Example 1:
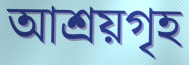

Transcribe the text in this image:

আশ্ৰয়গৃহ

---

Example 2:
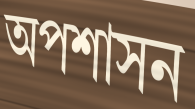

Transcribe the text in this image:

অপশাসন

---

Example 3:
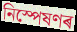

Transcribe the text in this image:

নিস্পেষণৰ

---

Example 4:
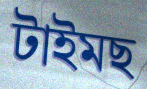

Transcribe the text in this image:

টাইমছ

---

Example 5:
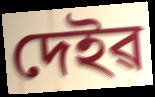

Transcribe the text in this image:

দেইৱ